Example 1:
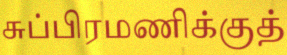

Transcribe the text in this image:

சுப்பிரமணிக்குத்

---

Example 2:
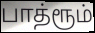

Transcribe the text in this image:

பாத்ரூம்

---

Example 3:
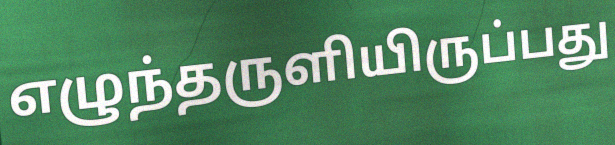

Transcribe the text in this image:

எழுந்தருளியிருப்பது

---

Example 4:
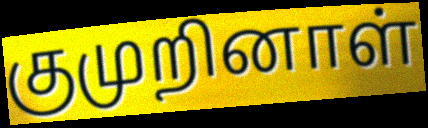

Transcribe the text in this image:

குமுறினாள்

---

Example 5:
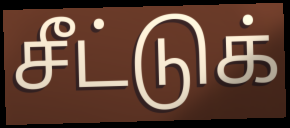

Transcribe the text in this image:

சீட்டுக்